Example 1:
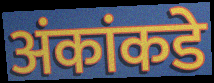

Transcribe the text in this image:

अंकांकडे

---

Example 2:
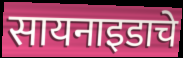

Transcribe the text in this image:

सायनाइडाचे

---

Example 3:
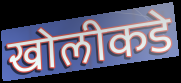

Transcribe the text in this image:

खोलीकडे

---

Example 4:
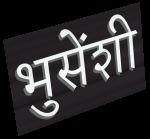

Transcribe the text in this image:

भुसेंशी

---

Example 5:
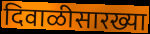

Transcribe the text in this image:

दिवाळीसारख्या